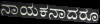
ನಾಯಕನಾದರೂ